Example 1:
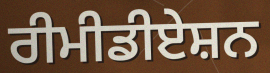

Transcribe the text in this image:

ਰੀਮੀਡੀਏਸ਼ਨ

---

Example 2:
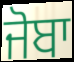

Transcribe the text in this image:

ਜੋਬਾ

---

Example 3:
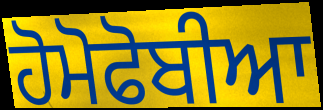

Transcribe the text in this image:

ਹੋਮੋਫੋਬੀਆ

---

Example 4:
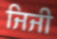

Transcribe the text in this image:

ਜਿਜੀ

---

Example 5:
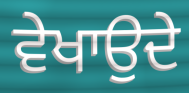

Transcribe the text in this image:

ਵੇਖਾਉਦੇ